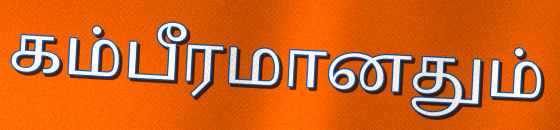
கம்பீரமானதும்